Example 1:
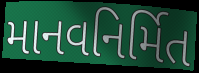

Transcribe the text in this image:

માનવનિર્મિત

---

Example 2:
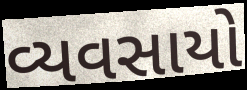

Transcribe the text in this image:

વ્યવસાયો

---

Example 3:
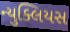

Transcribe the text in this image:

ન્યુક્લિયસ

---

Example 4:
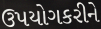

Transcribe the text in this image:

ઉપયોગકરીને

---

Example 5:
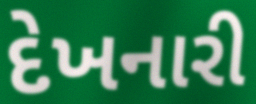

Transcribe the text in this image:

દેખનારી